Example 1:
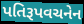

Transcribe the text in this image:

પતિરૂપવચનેન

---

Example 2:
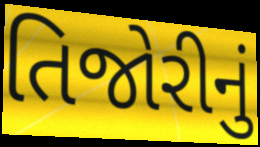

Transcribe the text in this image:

તિજોરીનું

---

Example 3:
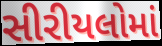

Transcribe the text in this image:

સીરીયલોમાં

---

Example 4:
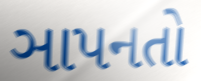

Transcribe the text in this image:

ઞાપનતો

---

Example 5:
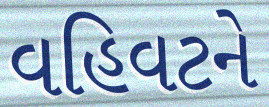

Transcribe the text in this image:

વહિવટને